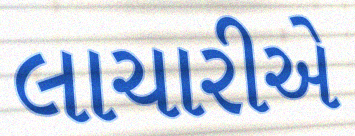
લાચારીએ